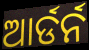
ଆର୍ଡର୍ନ